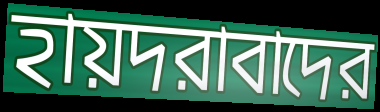
হায়দরাবাদের